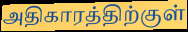
அதிகாரத்திற்குள்